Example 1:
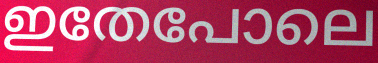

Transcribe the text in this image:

ഇതേപോലെ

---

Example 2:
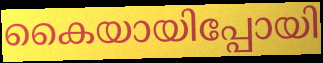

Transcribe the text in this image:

കൈയായിപ്പോയി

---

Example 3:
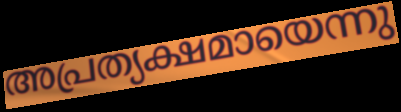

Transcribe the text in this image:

അപ്രത്യക്ഷമായെന്നു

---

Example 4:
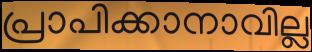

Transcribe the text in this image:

പ്രാപിക്കാനാവില്ല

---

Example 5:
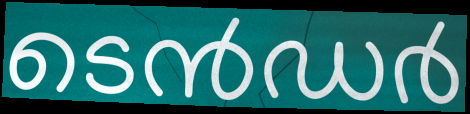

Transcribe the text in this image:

ടെൻഡർ